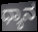
ಧ್ಯಾನ